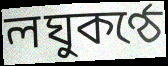
লঘুকণ্ঠে